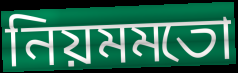
নিয়মমতো